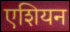
एशियन